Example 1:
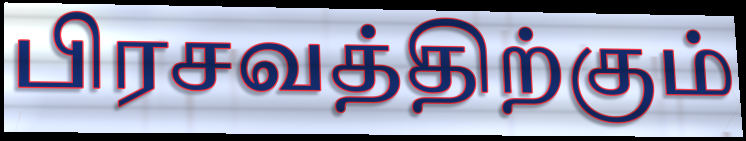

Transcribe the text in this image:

பிரசவத்திற்கும்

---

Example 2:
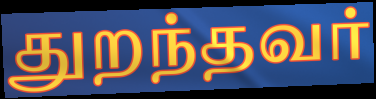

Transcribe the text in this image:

துறந்தவர்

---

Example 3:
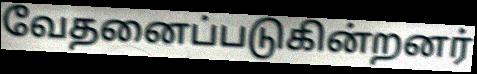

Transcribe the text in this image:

வேதனைப்படுகின்றனர்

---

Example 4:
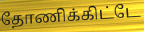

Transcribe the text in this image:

தோணிக்கிட்டே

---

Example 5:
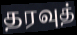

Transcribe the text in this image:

தரவுத்